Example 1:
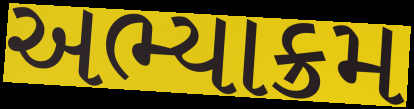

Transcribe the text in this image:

અભ્યાક્રમ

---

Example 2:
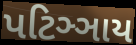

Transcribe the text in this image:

પટિઞ્ઞાય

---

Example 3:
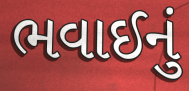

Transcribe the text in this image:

ભવાઈનું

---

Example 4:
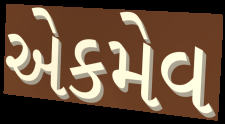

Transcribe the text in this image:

એકમેવ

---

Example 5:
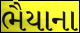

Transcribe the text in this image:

ભૈયાના